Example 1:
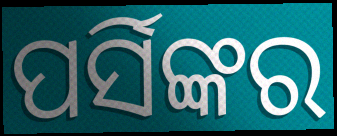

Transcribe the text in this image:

ପର୍ସିଙ୍କର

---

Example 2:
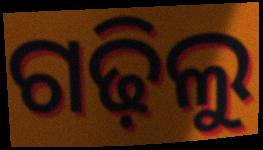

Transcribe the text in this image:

ଗଢ଼ିଲୁ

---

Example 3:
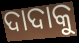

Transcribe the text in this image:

ଦାଦାକୁ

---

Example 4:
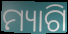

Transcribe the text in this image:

ମ୍ୟାଗି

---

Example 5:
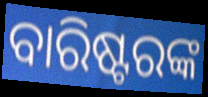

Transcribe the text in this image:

ବାରିଷ୍ଟରଙ୍କ